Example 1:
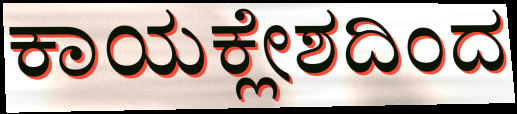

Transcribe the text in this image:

ಕಾಯಕ್ಲೇಶದಿಂದ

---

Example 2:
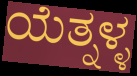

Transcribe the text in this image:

ಯೆತ್ನಳ್ಳ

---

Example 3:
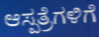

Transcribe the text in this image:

ಆಸ್ಪತ್ರೆಗಳಿಗೆ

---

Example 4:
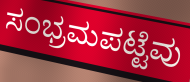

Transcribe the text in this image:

ಸಂಭ್ರಮಪಟ್ಟೆವು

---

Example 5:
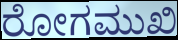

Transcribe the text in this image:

ರೋಗಮುಖಿ